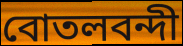
বোতলবন্দী